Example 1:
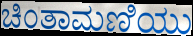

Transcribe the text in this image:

ಚಿಂತಾಮಣಿಯು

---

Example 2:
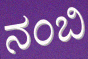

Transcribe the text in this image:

ನಂಬಿ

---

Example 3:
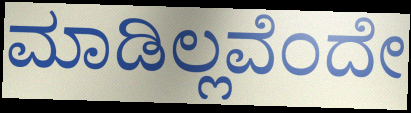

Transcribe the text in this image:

ಮಾಡಿಲ್ಲವೆಂದೇ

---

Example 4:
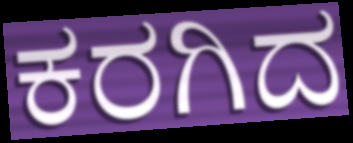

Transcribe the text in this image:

ಕರಗಿದ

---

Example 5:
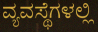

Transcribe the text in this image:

ವ್ಯವಸ್ಥೆಗಳಲ್ಲಿ